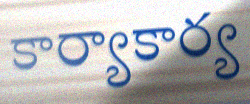
కార్యాకార్య